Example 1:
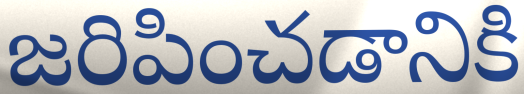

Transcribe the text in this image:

జరిపించడానికి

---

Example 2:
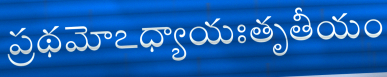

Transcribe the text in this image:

ప్రథమోఽధ్యాయఃతృతీయం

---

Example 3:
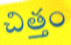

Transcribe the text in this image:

చిత్తం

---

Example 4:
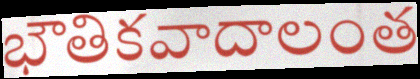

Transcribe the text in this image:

భౌతికవాదాలంత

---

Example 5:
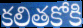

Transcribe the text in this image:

కలితకోకి